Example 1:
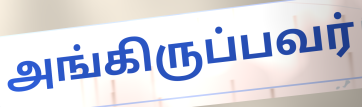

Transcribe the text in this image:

அங்கிருப்பவர்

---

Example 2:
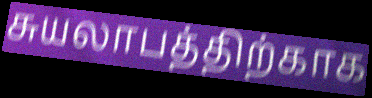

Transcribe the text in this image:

சுயலாபத்திற்காக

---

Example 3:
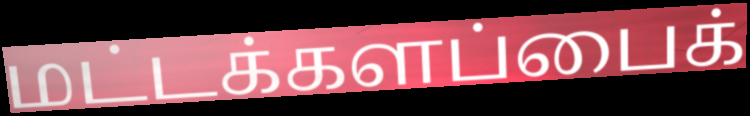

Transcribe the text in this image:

மட்டக்களப்பைக்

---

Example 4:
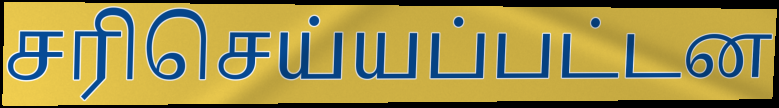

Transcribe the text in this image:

சரிசெய்யப்பட்டன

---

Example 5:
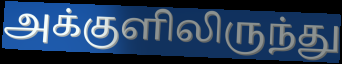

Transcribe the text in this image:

அக்குளிலிருந்து